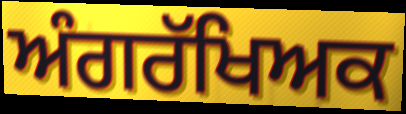
ਅੰਗਰੱਖਿਅਕ